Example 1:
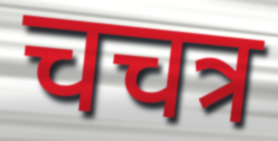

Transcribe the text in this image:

चचत्र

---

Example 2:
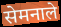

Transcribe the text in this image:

सेमनाले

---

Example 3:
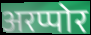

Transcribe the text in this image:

अरप्पोर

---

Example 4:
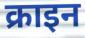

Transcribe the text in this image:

क्राइन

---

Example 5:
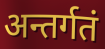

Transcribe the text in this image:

अन्तर्गतं